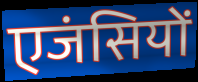
एजंसियों